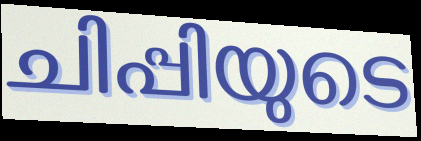
ചിപ്പിയുടെ